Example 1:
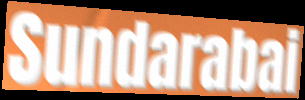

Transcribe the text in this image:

Sundarabai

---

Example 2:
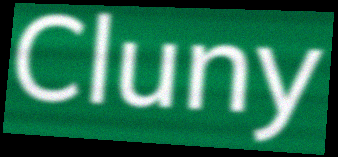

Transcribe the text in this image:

Cluny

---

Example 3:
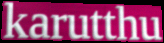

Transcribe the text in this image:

karutthu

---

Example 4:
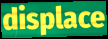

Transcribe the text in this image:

displace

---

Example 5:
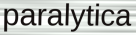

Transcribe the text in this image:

paralytica